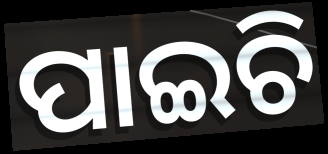
ପାଇଚି